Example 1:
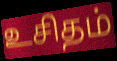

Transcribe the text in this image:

உசிதம்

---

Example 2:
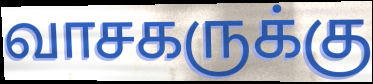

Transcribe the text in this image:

வாசகருக்கு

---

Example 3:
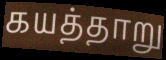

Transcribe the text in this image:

கயத்தாறு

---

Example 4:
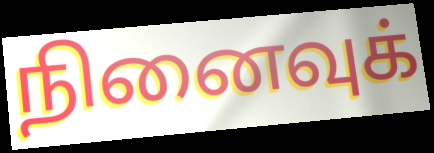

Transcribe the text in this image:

நினைவுக்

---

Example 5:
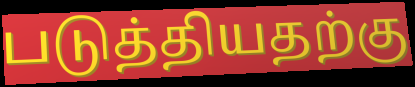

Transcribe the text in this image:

படுத்தியதற்கு